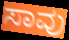
ಸಾವು